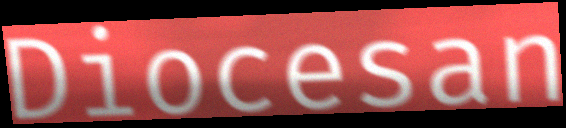
Diocesan